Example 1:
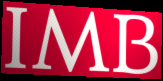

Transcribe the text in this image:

IMB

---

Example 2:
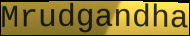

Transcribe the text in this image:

Mrudgandha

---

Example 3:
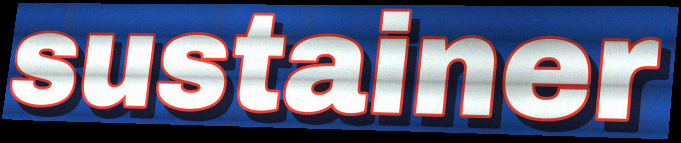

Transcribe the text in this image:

sustainer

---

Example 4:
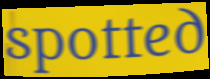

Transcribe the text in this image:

spotted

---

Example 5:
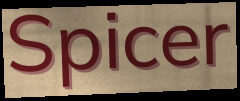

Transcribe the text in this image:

Spicer